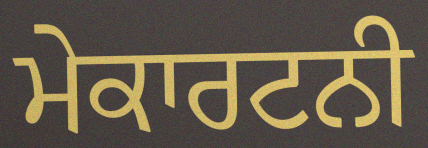
ਮੇਕਾਰਟਨੀ